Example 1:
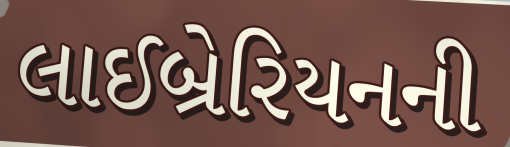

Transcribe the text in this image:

લાઈબ્રેરિયનની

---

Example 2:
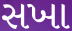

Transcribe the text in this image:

સખા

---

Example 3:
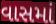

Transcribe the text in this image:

વાસમાં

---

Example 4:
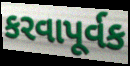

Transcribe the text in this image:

કરવાપૂર્વક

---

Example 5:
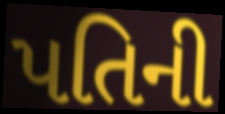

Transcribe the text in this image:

પતિની